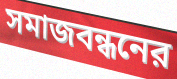
সমাজবন্ধনের